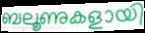
ബലൂണുകളായി